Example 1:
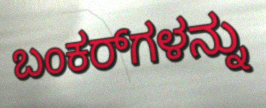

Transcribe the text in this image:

ಬಂಕರ್‌ಗಳನ್ನು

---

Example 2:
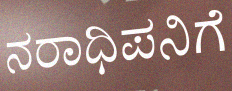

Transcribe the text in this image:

ನರಾಧಿಪನಿಗೆ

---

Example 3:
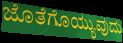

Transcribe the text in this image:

ಜೊತೆಗೊಯ್ಯುವುದು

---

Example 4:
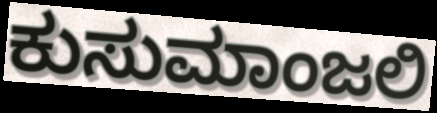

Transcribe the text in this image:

ಕುಸುಮಾಂಜಲಿ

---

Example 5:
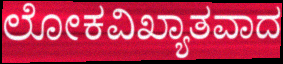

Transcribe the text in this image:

ಲೋಕವಿಖ್ಯಾತವಾದ